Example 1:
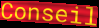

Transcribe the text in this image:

Conseil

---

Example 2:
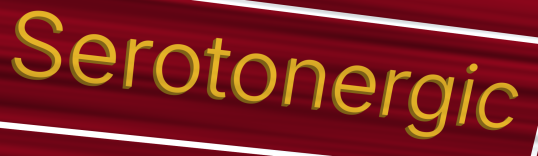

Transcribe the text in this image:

Serotonergic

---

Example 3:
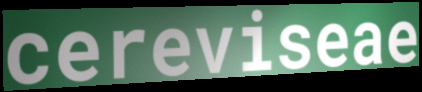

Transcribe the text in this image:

cereviseae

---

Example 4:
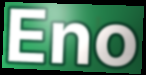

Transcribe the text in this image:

Eno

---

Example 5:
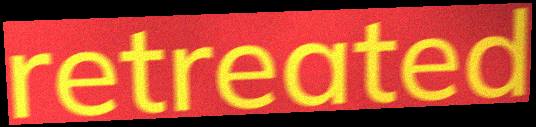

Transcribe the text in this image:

retreated